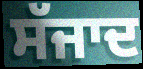
ਸੱਜਾਦ